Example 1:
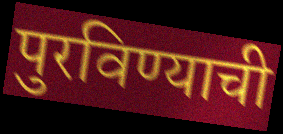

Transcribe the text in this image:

पुरविण्याची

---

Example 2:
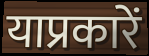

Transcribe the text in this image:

याप्रकारें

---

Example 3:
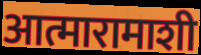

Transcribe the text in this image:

आत्मारामाशी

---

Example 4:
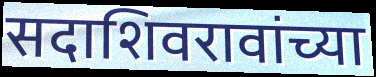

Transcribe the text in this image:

सदाशिवरावांच्या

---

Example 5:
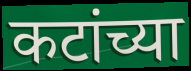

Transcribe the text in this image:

कटांच्या